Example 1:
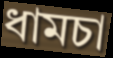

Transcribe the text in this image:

ধামচা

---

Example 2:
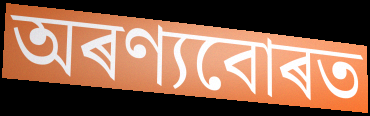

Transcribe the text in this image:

অৰণ্যবোৰত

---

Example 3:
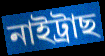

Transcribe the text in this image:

নাইট্ৰাছ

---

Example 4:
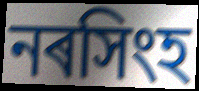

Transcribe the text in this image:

নৰসিংহ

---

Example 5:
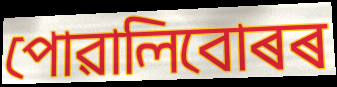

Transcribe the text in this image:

পোৱালিবোৰৰ